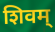
शिवम्